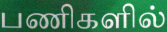
பணிகளில்